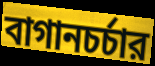
বাগানচর্চার